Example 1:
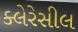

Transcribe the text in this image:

ક્લેરેસીલ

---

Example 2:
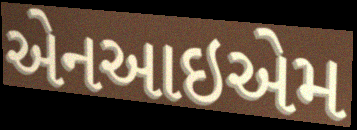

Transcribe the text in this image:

એનઆઇએમ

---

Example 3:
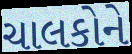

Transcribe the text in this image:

ચાલકોને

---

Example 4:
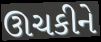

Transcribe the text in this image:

ઊચકીને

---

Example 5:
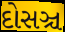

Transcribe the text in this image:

દોસઞ્ચ